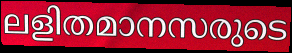
ലളിതമാനസരുടെ